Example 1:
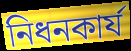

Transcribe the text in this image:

নিধনকার্য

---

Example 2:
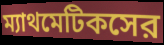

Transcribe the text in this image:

ম্যাথমেটিকসের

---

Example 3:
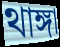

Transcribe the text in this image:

থাঙ্গা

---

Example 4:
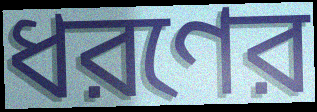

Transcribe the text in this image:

ধরণের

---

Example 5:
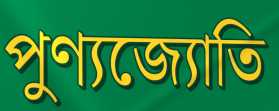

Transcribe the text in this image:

পুণ্যজ্যোতি